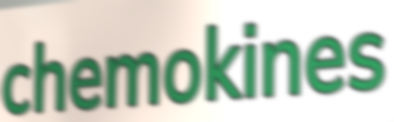
chemokines